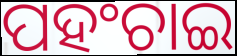
ପହଂଚାଇ